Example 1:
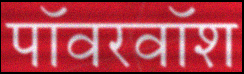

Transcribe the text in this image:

पॉवरवॉश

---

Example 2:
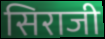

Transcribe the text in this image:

सिराजी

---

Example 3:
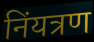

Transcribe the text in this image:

निंयत्रण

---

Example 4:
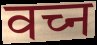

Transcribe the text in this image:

वच्न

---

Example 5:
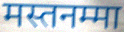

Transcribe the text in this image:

मस्तनम्मा